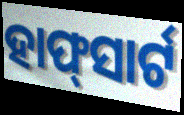
ହାଫ୍‍ସାର୍ଟ